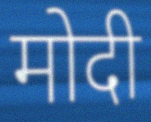
मोदी